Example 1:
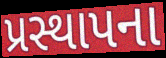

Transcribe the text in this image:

પ્રસ્થાપના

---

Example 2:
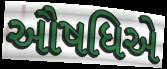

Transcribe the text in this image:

ઔષધિએ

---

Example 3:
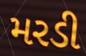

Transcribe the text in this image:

મરડી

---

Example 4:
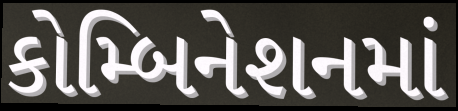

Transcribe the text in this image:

કોમ્બિનેશનમાં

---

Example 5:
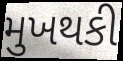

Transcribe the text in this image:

મુખથકી